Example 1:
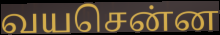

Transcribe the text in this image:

வயசென்ன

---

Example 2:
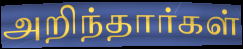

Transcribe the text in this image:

அறிந்தார்கள்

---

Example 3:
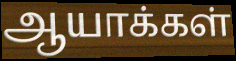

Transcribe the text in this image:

ஆயாக்கள்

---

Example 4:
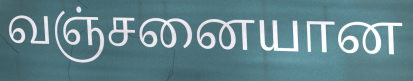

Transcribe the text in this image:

வஞ்சனையான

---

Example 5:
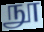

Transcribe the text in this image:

நூ